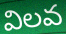
విలవ